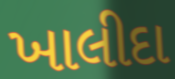
ખાલીદા